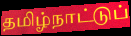
தமிழ்நாட்டுப்